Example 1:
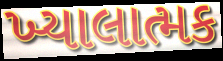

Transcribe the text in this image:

ખ્યાલાત્મક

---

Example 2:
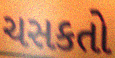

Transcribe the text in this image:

ચસકતો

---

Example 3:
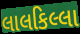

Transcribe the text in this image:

લાલકિલ્લા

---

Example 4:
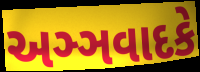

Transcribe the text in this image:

અઞ્ઞવાદકે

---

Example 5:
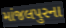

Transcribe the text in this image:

માંજલપુરના